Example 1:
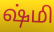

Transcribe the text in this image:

ஷ்மி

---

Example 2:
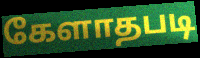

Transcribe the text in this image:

கேளாதபடி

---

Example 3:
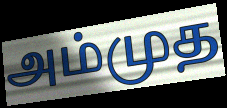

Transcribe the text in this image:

அம்முத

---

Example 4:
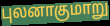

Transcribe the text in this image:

புலனாகுமாறு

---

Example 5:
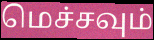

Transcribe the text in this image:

மெச்சவும்